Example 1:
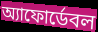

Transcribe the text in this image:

অ্যাফোর্ডেবল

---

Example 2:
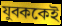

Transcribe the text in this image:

যুবককেই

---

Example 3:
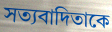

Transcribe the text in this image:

সত্যবাদিতাকে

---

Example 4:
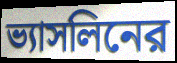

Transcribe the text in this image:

ভ্যাসলিনের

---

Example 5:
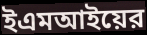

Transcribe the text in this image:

ইএমআইয়ের